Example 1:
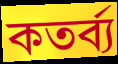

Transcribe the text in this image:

কতর্ব্য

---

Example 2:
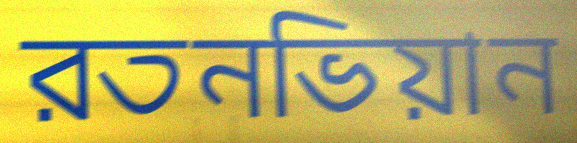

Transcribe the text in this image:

রতনভিয়ান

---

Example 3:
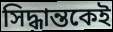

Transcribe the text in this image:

সিদ্ধান্তকেই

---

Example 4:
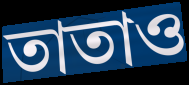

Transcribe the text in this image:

তাতাও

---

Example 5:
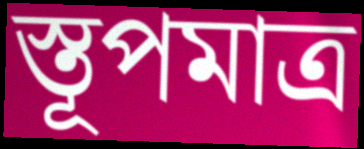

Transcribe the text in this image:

স্তূপমাত্র